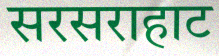
सरसराहाट